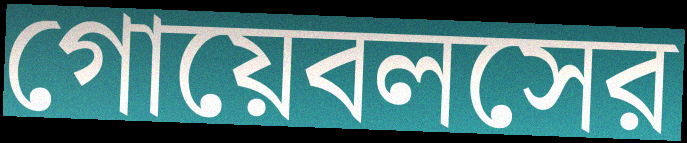
গোয়েবলসের